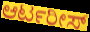
ಆರ್ಟರೀಸ್